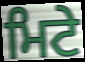
ਮਿਟੇ